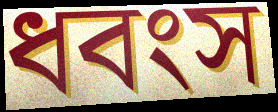
ধবংস